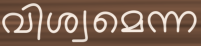
വിശ്വമെന്ന